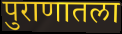
पुराणातला